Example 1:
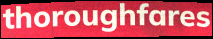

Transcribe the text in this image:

thoroughfares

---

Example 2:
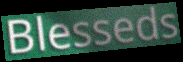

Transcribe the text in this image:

Blesseds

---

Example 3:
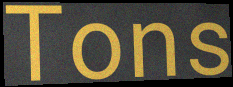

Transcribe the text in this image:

Tons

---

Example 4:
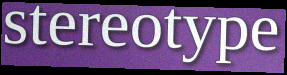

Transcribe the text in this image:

stereotype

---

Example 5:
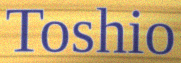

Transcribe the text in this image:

Toshio